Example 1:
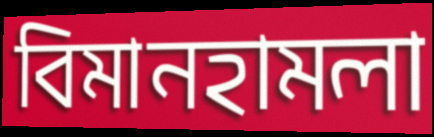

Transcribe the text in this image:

বিমানহামলা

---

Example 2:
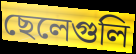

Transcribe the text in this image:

ছেলেগুলি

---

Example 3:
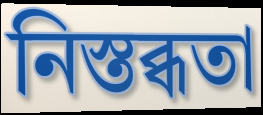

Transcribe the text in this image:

নিস্তব্ধতা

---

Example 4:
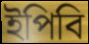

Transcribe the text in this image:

ইপিবি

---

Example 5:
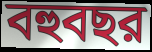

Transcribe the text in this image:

বহুবছর